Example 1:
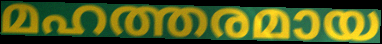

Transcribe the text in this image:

മഹത്തരമായ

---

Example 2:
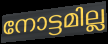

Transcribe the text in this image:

നോട്ടമില്ല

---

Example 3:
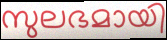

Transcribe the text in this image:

സുലഭമായി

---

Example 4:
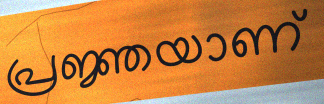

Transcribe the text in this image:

പ്രജ്ഞയാണ്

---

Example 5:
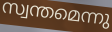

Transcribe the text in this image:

സ്വന്തമെന്നു